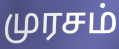
முரசம்